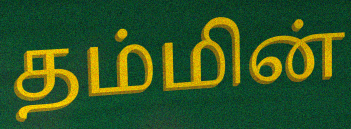
தம்மின்